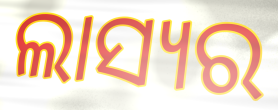
ଲାସ୍ୟର